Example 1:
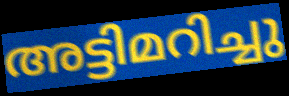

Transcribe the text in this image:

അട്ടിമറിച്ചു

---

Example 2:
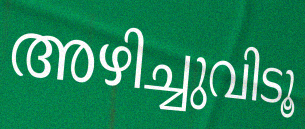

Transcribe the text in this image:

അഴിച്ചുവിടൂ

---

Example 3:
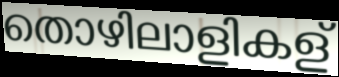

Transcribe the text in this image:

തൊഴിലാളികള്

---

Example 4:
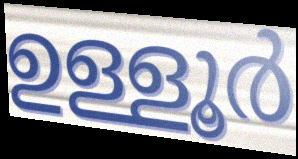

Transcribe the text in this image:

ഉള്ളൂർ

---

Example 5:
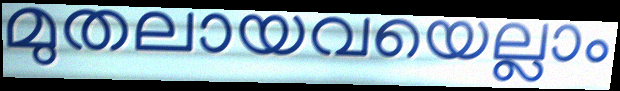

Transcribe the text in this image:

മുതലായവയെല്ലാം